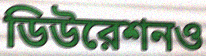
ডিউরেশনও